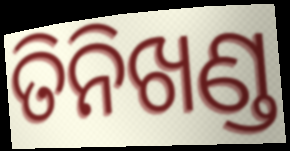
ତିନିଖଣ୍ଡ